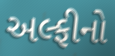
અલ્ફીનો